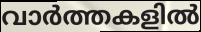
വാർത്തകളിൽ